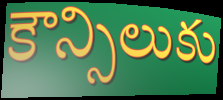
కౌన్సిలుకు